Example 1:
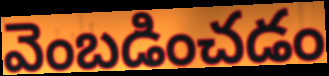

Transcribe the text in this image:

వెంబడించడం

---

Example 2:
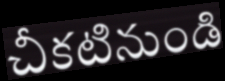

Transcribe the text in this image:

చీకటినుండి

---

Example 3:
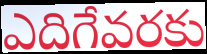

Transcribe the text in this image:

ఎదిగేవరకు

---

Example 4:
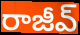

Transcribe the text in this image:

రాజీవ్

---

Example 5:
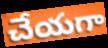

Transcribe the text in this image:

చేయగా